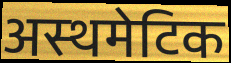
अस्थमेटिक